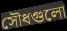
সৌধগুলো